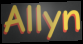
Allyn